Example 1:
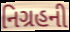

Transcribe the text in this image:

નિગ્રહની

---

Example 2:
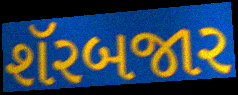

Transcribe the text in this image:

શૅરબજાર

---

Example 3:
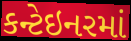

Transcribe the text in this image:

કન્ટેઇનરમાં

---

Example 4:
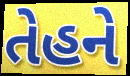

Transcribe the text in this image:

તેહને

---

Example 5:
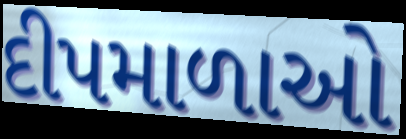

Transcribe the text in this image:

દીપમાળાઓ